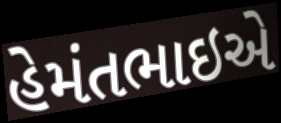
હેમંતભાઇએ